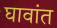
घावांत